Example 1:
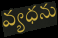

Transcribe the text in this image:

వ్యధను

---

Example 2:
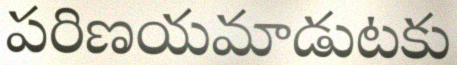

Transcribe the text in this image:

పరిణయమాడుటకు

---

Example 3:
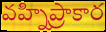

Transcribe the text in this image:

వహ్నిప్రాకార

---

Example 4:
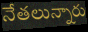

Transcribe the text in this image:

నేతలున్నారు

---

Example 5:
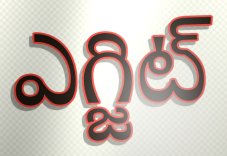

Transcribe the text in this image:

ఎగ్జిట్